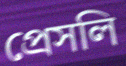
প্রেসলি